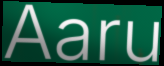
Aaru